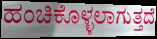
ಹಂಚಿಕೊಳ್ಳಲಾಗುತ್ತದೆ